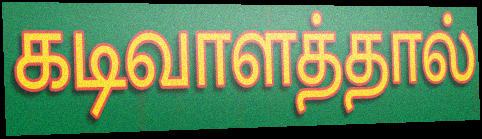
கடிவாளத்தால்